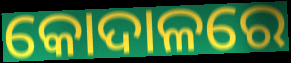
କୋଦାଳରେ